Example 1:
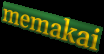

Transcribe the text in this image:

memakai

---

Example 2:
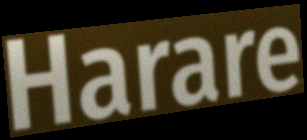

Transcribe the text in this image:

Harare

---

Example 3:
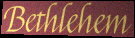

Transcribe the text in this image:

Bethlehem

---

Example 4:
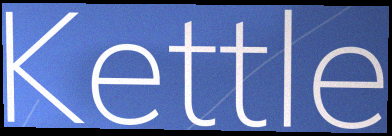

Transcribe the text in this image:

Kettle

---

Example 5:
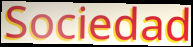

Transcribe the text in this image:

Sociedad